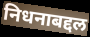
निधनाबद्दल